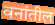
वनांतील